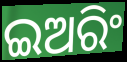
ଇଅରିଂ